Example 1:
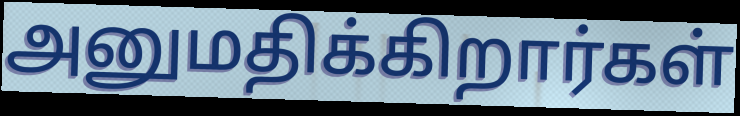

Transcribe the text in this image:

அனுமதிக்கிறார்கள்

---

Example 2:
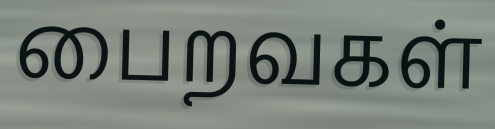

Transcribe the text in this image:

பைறவகள்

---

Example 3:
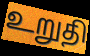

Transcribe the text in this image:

உறுதி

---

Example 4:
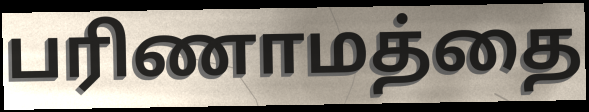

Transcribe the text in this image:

பரிணாமத்தை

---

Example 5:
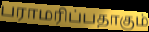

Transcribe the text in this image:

பராமரிப்பதாகும்